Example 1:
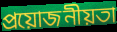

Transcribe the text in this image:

প্রয়োজনীয়তা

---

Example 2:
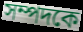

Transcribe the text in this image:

সম্পদকে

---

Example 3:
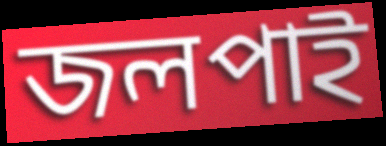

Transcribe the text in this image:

জলপাই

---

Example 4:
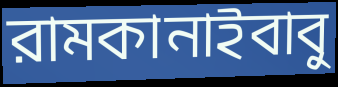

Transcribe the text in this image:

রামকানাইবাবু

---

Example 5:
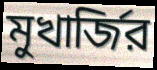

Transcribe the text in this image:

মুখার্জির